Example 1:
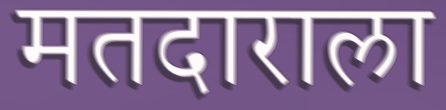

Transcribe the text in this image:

मतदाराला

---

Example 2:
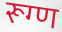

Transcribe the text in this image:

रूग्ण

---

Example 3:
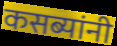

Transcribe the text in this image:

कसब्यांनी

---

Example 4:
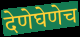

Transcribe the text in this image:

देणेघेणेच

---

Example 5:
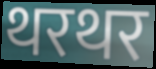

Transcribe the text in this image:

थरथर